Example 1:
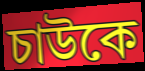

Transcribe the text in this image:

চাউকে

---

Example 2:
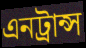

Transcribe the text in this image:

এনট্রান্স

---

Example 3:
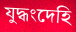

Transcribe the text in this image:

যুদ্ধংদেহি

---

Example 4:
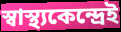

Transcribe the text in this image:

স্বাস্থ্যকেন্দ্রেই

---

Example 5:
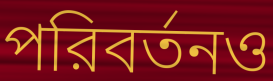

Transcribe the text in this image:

পরিবর্তনও